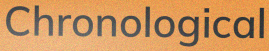
Chronological